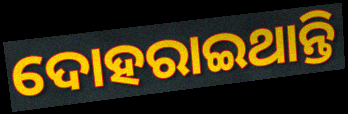
ଦୋହରାଇଥାନ୍ତି